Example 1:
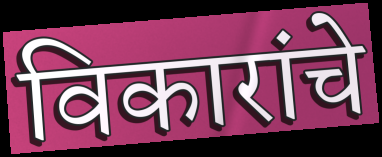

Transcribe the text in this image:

विकारांचे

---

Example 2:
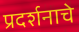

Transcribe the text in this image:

प्रदर्शनाचे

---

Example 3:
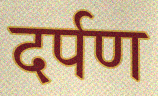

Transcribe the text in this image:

दर्पण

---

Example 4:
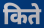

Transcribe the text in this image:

किते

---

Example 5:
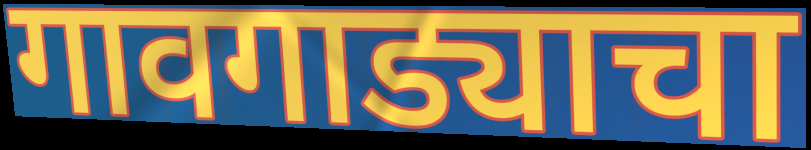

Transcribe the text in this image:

गावगाड्याचा